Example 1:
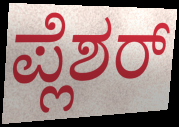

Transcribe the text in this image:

ಪ್ಲೆಶರ್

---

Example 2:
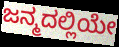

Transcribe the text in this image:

ಜನ್ಮದಲ್ಲಿಯೇ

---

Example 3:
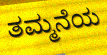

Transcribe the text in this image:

ತಮ್ಮನೆಯ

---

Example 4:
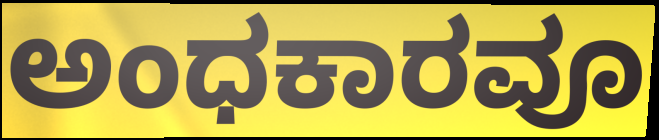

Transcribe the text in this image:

ಅಂಧಕಾರವೂ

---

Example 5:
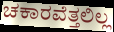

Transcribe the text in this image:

ಚಕಾರವೆತ್ತಲಿಲ್ಲ